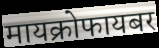
मायक्रोफायबर